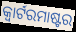
କ୍ୱାର୍ଟରମାଷ୍ଟର